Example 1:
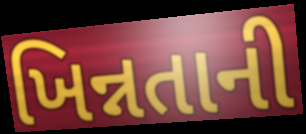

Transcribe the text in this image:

ખિન્નતાની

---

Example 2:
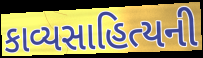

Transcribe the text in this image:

કાવ્યસાહિત્યની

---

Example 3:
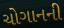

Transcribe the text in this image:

ચોગાનની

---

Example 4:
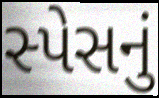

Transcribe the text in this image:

સ્પેસનું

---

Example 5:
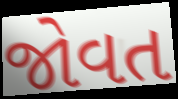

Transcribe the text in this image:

જોવત